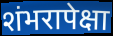
शंभरापेक्षा